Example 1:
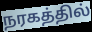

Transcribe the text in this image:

நரகத்தில்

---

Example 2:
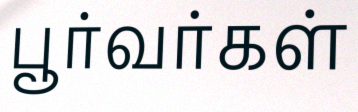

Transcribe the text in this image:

பூர்வர்கள்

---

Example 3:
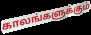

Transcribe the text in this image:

காலங்களுக்கும்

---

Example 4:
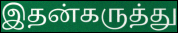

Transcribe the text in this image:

இதன்கருத்து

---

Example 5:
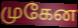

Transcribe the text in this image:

முகேன